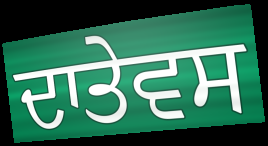
ਦਾਤੇਵਸ